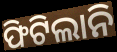
ଫିଟିଲାନି